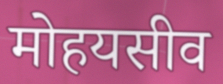
मोहयसीव